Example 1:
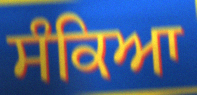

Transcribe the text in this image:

ਸੰਕਿਆ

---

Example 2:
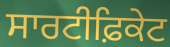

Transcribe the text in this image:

ਸਾਰਟੀਫ਼ਿਕੇਟ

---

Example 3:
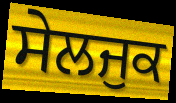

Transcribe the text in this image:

ਸੇਲਜੁਕ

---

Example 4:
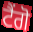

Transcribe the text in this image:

ਟੈਂਗੋ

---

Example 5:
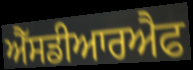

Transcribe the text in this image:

ਐੱਸਡੀਆਰਐਫ